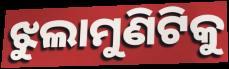
ଝୁଲାମୁଣିଟିକୁ